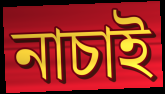
নাচাই